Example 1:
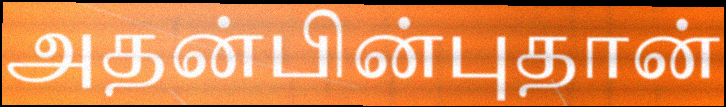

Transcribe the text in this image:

அதன்பின்புதான்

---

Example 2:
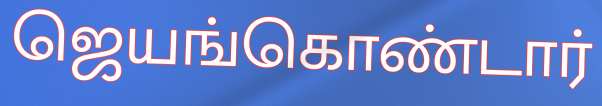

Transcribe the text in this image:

ஜெயங்கொண்டார்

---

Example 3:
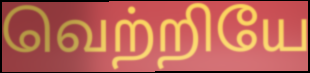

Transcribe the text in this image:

வெற்றியே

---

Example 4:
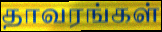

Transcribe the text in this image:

தாவரங்கள்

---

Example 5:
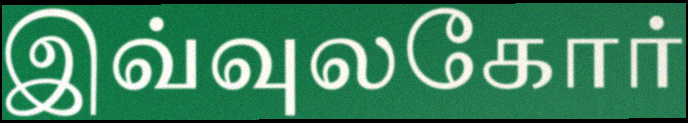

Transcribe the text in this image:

இவ்வுலகோர்